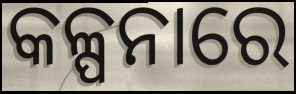
କଳ୍ପନାରେ